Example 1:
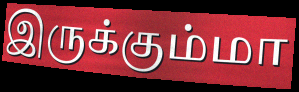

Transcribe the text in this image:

இருக்கும்மா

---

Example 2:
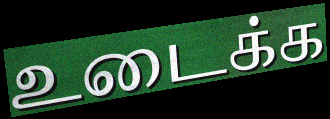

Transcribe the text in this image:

உடைக்க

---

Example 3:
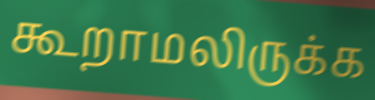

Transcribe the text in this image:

கூறாமலிருக்க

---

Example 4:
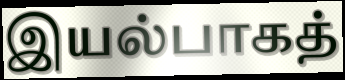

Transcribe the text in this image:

இயல்பாகத்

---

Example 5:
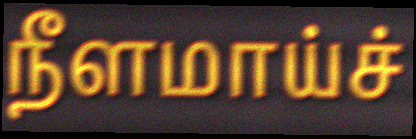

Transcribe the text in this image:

நீளமாய்ச்